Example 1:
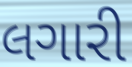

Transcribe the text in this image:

લગારી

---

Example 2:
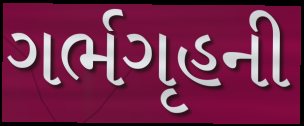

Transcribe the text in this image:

ગર્ભગૃહની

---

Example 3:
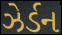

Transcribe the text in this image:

ઝેર્ડન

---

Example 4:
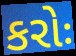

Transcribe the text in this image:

કરોઃ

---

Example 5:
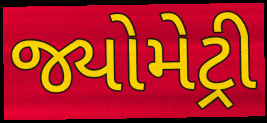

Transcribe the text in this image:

જ્યોમેટ્રી